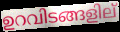
ഉറവിടങ്ങളില്